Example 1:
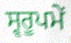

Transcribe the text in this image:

ਸ੍ਵਰੂਪਮੇਂ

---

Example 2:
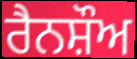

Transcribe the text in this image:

ਰੈਨਸ਼ੌਅ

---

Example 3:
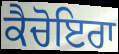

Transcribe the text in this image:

ਕੈਚੋਇਰਾ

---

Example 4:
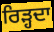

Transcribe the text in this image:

ਰਿੜ੍ਹਦਾ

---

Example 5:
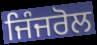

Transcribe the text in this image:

ਜਿੰਜਰੋਲ